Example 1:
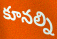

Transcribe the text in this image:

కూనల్ని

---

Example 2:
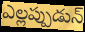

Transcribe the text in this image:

ఎల్లప్పుడున్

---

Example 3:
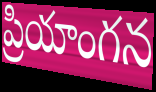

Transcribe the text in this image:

ప్రియాంగన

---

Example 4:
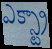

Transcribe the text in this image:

ఎక్స్ట్రా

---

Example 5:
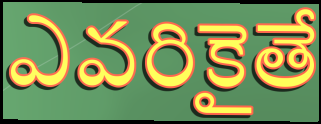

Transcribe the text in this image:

ఎవరికైతే